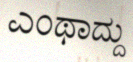
ಎಂಥಾದ್ದು